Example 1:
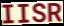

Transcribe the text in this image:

IISR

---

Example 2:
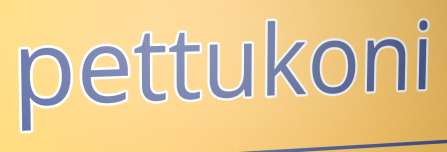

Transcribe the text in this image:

pettukoni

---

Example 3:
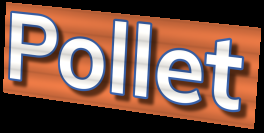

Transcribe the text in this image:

Pollet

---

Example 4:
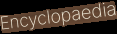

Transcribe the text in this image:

Encyclopaedia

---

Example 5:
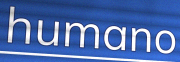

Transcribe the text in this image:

humano